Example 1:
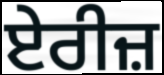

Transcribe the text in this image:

ਏਰੀਜ਼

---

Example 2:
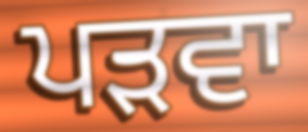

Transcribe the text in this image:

ਪੜਵਾ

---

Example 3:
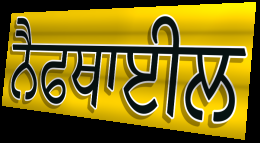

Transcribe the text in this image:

ਨੈਫਥਾਈਲ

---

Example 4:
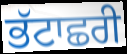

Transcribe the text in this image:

ਭੱਟਾਛਰੀ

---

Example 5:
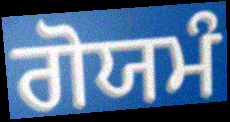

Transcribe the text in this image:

ਗੋਯਮੰ